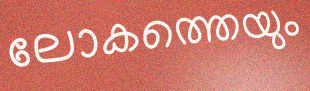
ലോകത്തെയും